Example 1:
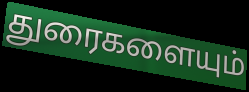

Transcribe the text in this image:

துரைகளையும்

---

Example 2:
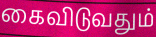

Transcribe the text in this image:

கைவிடுவதும்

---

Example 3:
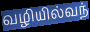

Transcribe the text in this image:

வழியில்வந்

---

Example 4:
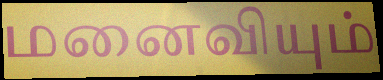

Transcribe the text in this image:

மனைவியும்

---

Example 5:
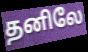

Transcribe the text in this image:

தனிலே